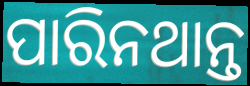
ପାରିନଥାନ୍ତ